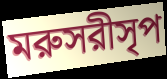
মরুসরীসৃপ